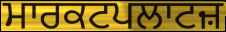
ਮਾਰਕਟਪਲਾਟਜ਼